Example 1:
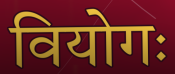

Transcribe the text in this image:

वियोगः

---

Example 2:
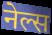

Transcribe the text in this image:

नेल्स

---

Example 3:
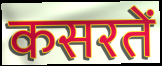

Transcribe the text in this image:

कसरतें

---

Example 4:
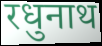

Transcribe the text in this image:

रधुनाथ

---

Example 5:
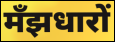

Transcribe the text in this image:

मँझधारों